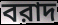
বরাদ